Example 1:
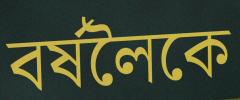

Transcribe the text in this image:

বৰ্ষলৈকে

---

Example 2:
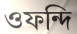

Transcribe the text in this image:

ওফন্দি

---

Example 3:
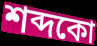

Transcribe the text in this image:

শব্দকো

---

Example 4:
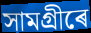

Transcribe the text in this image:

সামগ্ৰীৰে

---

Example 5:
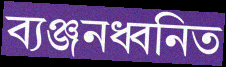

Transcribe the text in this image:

ব্যঞ্জনধ্বনিত